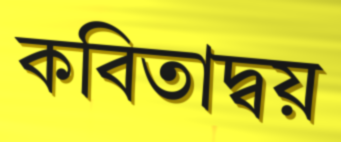
কবিতাদ্বয়